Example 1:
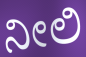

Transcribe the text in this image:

ನೀಲಿ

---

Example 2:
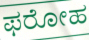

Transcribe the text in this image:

ಫರೋಹ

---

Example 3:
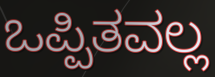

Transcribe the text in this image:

ಒಪ್ಪಿತವಲ್ಲ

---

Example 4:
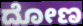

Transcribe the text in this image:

ದೋಣ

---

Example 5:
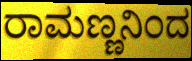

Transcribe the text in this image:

ರಾಮಣ್ಣನಿಂದ